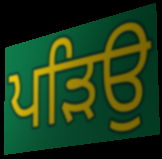
ਪੜਿਉ